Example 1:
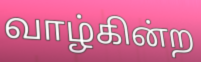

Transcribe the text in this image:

வாழ்கின்ற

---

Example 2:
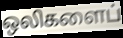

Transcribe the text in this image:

ஒலிகளைப்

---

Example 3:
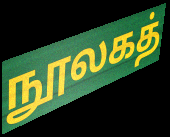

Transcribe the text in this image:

நூலகத்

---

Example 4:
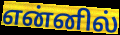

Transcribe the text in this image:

என்னில்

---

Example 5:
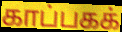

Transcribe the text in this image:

காப்பகக்